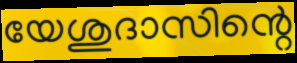
യേശുദാസിന്റെ